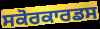
ਸਕੋਰਕਾਰਡਸ